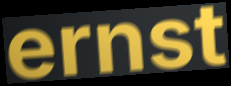
ernst